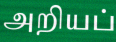
அறியப்